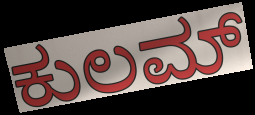
ಕುಲಮ್